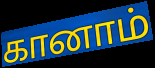
கானாம்